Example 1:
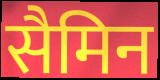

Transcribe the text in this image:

सैमिन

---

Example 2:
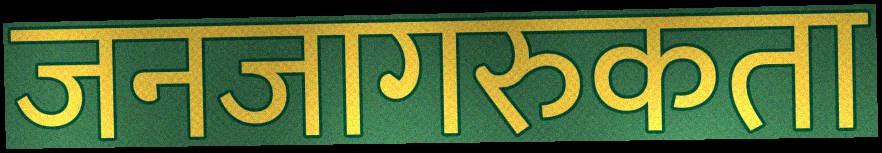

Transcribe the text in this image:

जनजागरुकता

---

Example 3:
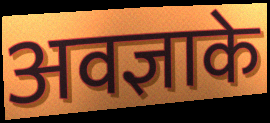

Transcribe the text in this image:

अवज्ञाके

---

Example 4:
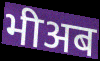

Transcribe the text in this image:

भीअब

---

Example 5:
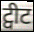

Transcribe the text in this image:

ट्वीट